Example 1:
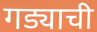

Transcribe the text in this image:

गड्याची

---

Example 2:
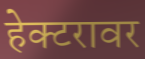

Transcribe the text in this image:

हेक्टरावर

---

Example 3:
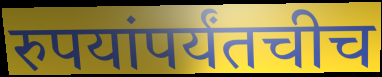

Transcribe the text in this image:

रुपयांपर्यंतचीच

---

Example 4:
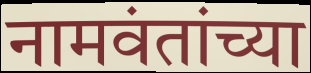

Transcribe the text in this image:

नामवंतांच्या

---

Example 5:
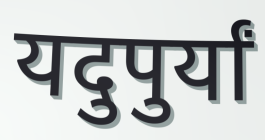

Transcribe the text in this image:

यदुपुर्यां